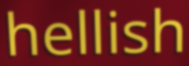
hellish